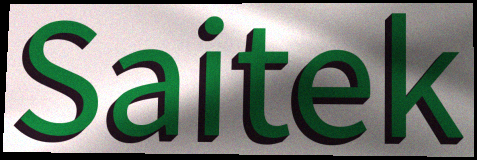
Saitek